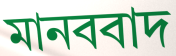
মানববাদ